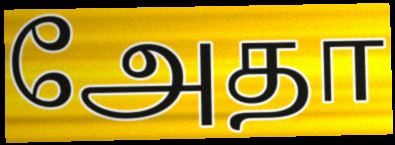
அேதா